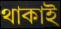
থাকাই